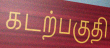
கடற்பகுதி